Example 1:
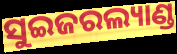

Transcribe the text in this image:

ସୁଇଜରଲ୍ୟାଣ୍ଡ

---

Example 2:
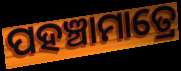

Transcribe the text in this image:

ପହଞ୍ଚାମାତ୍ରେ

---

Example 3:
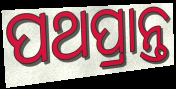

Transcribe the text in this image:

ପଥପ୍ରାନ୍ତ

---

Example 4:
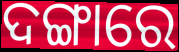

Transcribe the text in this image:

ଦଙ୍ଗାରେ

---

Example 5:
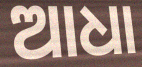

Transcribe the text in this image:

ଆଧା